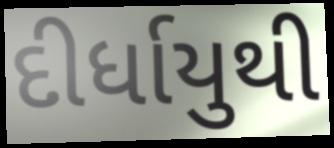
દીર્ધાયુથી